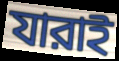
যারাই